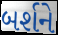
બર્શને